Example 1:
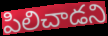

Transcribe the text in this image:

పిలిచాడని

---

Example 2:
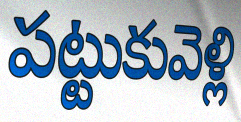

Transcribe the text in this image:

పట్టుకువెళ్లి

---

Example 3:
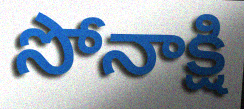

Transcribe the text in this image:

సోనాక్షి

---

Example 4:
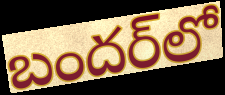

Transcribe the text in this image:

బందర్‌లో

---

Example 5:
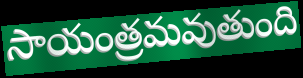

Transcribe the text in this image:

సాయంత్రమవుతుంది